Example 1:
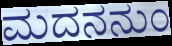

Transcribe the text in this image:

ಮದನನುಂ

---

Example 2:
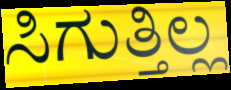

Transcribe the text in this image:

ಸಿಗುತ್ತಿಲ್ಲ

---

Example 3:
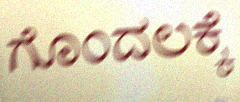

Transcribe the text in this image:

ಗೊಂದಲಕ್ಕೆ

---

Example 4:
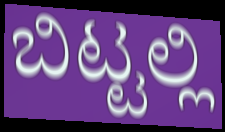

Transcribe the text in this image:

ಬಿಟ್ಟಲ್ಲಿ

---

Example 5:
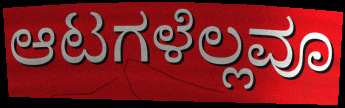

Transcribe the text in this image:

ಆಟಗಳೆಲ್ಲವೂ